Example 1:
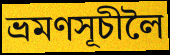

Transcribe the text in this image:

ভ্ৰমণসূচীলৈ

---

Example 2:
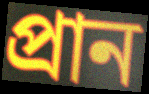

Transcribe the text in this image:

প্ৰান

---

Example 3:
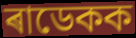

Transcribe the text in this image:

ৰাডেকক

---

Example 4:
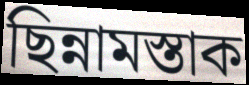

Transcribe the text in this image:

ছিন্নামস্তাক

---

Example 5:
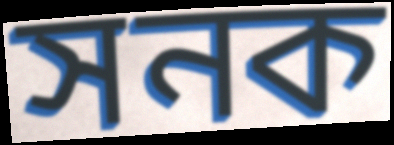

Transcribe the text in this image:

সনক